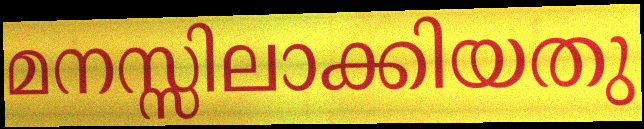
മനസ്സിലാക്കിയതു